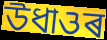
উধাওৰ